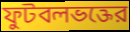
ফুটবলভক্তের